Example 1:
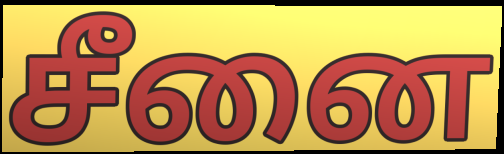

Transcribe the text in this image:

சீனை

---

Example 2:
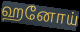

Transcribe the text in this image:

ஹனோய்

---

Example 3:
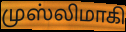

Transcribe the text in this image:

முஸ்லிமாகி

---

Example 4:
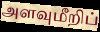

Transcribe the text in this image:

அளவுமீறிப்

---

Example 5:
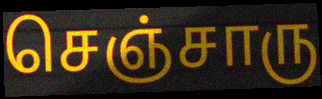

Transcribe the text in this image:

செஞ்சாரு